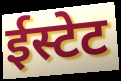
ईस्टेट